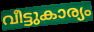
വീട്ടുകാര്യം